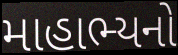
માહાભ્યનો